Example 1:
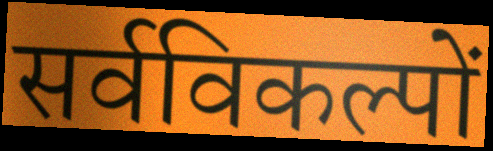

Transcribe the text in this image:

सर्वविकल्पों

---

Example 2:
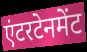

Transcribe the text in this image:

एंटरटेनमेंट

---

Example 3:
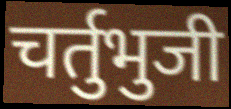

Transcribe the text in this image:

चर्तुभुजी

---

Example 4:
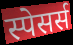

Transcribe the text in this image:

स्पेसर्स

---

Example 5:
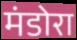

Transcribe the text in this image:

मंडोरा